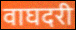
वाघदरी